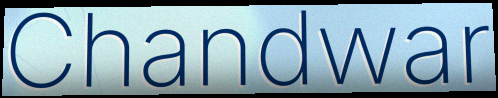
Chandwar